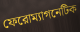
ফেরোম্যাগনেটিক